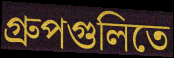
গ্রুপগুলিতে